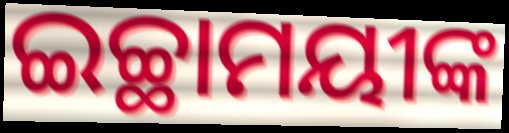
ଇଚ୍ଛାମୟୀଙ୍କ